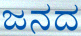
ಜನದ